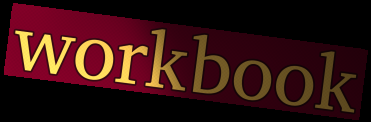
workbook